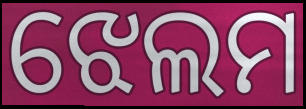
ଝେଲମ